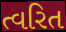
ત્વરિત